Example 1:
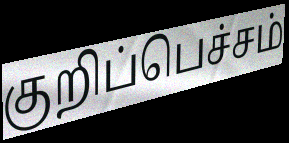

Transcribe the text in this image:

குறிப்பெச்சம்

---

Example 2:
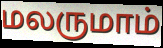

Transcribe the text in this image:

மலருமாம்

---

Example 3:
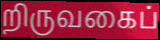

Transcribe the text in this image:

றிருவகைப்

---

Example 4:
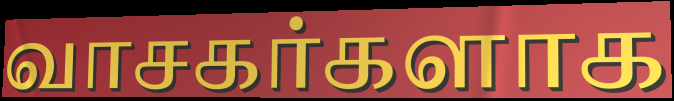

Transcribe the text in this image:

வாசகர்களாக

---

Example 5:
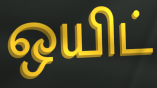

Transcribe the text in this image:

ஒயிட்